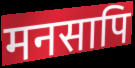
मनसापि